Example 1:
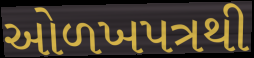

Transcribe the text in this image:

ઓળખપત્રથી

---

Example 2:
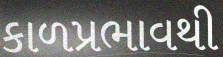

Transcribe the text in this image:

કાળપ્રભાવથી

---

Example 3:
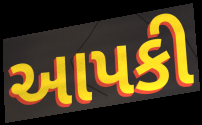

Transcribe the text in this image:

આપકી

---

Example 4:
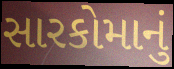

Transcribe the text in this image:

સારકોમાનું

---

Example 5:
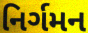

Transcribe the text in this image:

નિર્ગમન